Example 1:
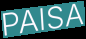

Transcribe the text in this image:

PAISA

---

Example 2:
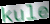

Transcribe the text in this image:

kule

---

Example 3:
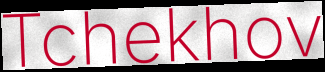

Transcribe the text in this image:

Tchekhov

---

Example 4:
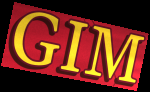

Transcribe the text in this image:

GIM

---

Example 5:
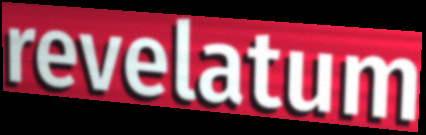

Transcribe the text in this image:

revelatum